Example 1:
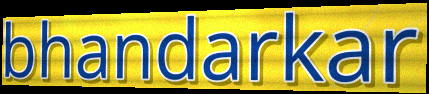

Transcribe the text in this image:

bhandarkar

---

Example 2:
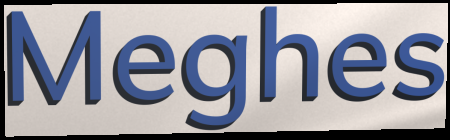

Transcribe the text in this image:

Meghes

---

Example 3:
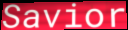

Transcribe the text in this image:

Savior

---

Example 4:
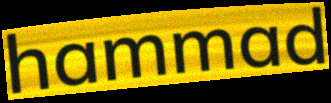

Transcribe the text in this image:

hammad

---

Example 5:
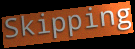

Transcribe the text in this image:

Skipping